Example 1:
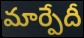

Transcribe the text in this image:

మార్పేదీ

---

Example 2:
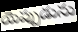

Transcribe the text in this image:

యెప్పుడును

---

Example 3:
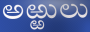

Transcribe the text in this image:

అఱ్ఱులు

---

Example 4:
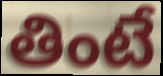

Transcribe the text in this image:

తింటే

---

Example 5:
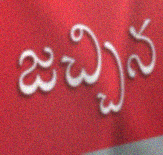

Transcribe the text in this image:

జచ్చిన